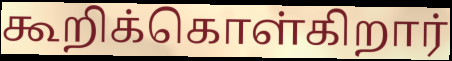
கூறிக்கொள்கிறார்